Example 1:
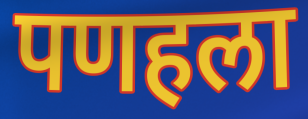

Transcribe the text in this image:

पणहला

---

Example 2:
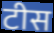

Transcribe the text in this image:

टीस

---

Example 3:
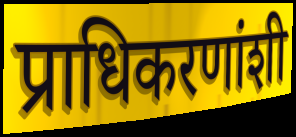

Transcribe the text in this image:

प्राधिकरणांशी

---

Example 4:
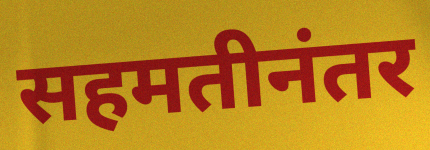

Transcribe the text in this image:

सहमतीनंतर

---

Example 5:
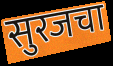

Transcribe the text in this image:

सुरजचा